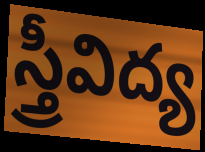
స్త్రీవిద్య